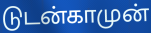
டுடன்காமுன்